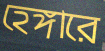
হেঙ্গারে